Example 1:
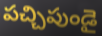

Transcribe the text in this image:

పచ్చిపుండై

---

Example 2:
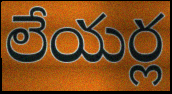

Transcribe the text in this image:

లేయర్ల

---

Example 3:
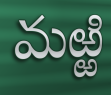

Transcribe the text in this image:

మఱ్ఱి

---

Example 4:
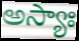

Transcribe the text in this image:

అస్యాః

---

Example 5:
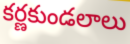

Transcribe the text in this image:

కర్ణకుండలాలు